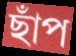
ছাঁপ